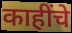
काहींचे